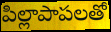
పిల్లాపాపలతో